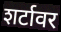
शर्टावर